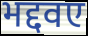
भद्दवए